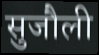
सुजौली